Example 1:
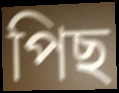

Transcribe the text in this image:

পিছ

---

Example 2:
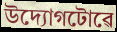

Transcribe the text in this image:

উদ্যোগটোৱে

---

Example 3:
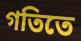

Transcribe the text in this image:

গতিতে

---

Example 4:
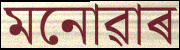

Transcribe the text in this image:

মনোৱাৰ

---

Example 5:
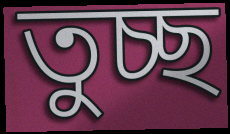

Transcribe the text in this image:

তুচ্ছ